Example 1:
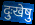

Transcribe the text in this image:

दुःखेषु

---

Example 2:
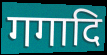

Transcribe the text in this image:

गगादि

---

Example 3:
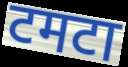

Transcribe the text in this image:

टमटा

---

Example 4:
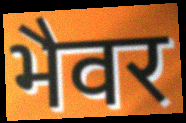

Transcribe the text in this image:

भैवर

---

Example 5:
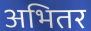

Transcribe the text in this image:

अभितर